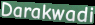
Darakwadi